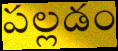
పల్లడం